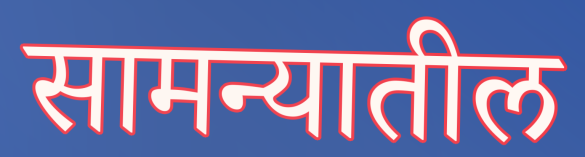
सामन्यातील